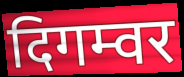
दिगम्वर